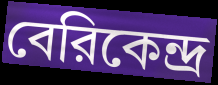
বেরিকেন্দ্র